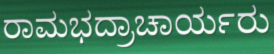
ರಾಮಭದ್ರಾಚಾರ್ಯರು